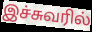
இச்சுவரில்